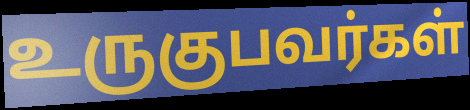
உருகுபவர்கள்